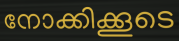
നോക്കിക്കൂടെ